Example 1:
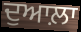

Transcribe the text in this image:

ਦੁਆਲ਼ਾ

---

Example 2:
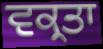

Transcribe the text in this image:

ਵਕ੍ਰਤਾ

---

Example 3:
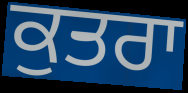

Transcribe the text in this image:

ਕੁਤਰਾ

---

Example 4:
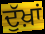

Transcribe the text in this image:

ਦੁੱਖ਼ਾਂ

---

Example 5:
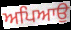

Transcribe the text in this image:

ਅਪਿਆਉ